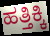
ಹತ್ತಿಕ್ಕಿ